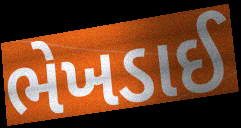
ભેખડાઈ